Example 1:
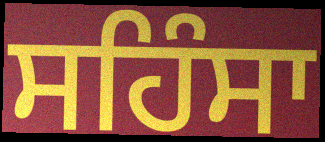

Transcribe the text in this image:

ਸਹਿੰਸਾ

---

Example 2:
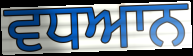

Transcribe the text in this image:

ਵਧਆਨ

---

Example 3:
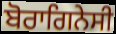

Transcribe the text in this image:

ਬੋਰਾਗਿਨੇਸੀ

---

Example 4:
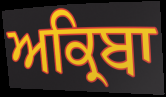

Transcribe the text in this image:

ਅਕ੍ਰਿਬਾ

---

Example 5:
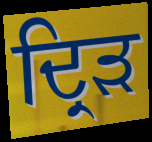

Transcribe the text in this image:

ਦ੍ਰਿਡ਼